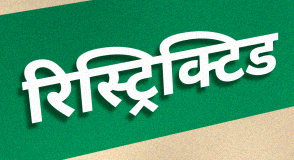
रिस्ट्रिक्टिड